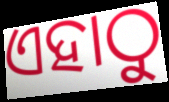
ଏହାଠୁ